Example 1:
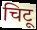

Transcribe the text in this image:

चिटू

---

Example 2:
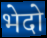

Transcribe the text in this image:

भेदो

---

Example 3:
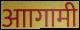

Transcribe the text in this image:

आागामी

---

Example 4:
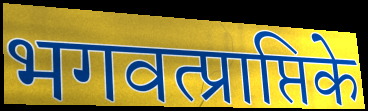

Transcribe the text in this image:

भगवत्प्राप्तिके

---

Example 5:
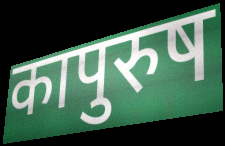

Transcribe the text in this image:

कापुरुष